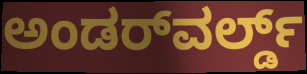
ಅಂಡರ್‌ವರ್ಲ್ಡ್